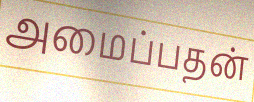
அமைப்பதன்